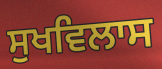
ਸੁਖਵਿਲਾਸ